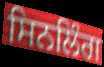
ਸਿਨਲਿੰਗ